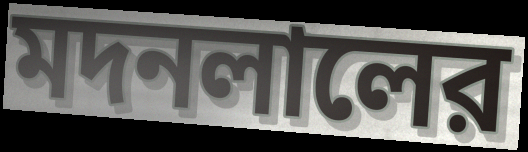
মদনলালের